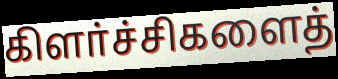
கிளர்ச்சிகளைத்